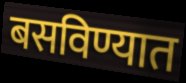
बसविण्यात